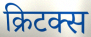
क्रिटक्स